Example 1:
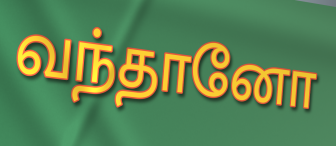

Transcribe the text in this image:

வந்தானோ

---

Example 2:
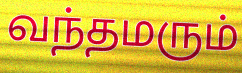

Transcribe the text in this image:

வந்தமரும்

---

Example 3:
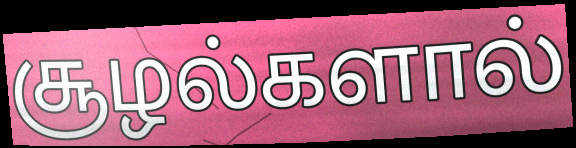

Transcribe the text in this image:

சூழல்களால்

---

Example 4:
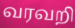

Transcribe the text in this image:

வரவறி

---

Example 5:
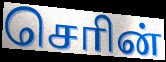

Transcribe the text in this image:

செரின்